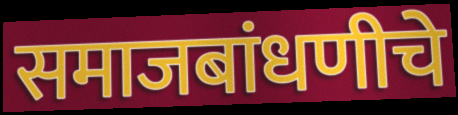
समाजबांधणीचे